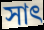
সাৎ